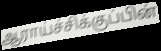
ஆராய்ச்சிக்குப்பின்